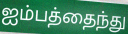
ஐம்பத்தைந்து